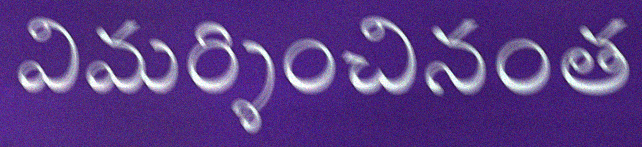
విమర్శించినంత